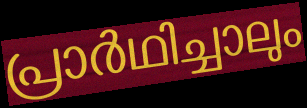
പ്രാർഥിച്ചാലും